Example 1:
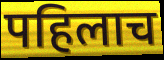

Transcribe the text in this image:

पहिलाच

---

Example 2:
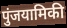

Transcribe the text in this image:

पुंजयामिकी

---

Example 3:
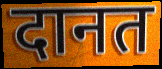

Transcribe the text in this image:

दानत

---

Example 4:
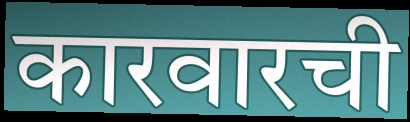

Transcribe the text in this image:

कारवारची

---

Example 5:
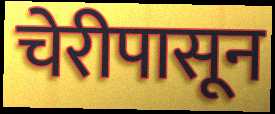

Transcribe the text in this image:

चेरीपासून